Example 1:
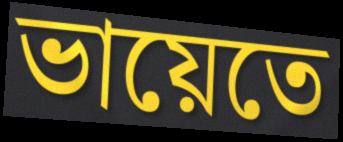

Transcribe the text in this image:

ভায়েতে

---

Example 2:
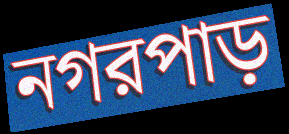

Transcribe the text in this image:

নগরপাড়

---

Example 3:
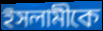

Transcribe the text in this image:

ইসলামীকে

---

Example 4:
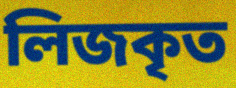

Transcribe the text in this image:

লিজকৃত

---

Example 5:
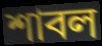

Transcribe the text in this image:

শাবল